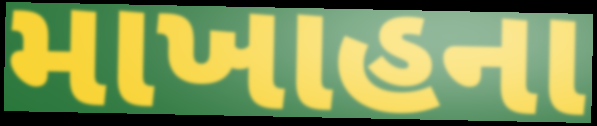
માખાહના